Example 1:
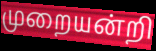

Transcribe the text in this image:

முறையன்றி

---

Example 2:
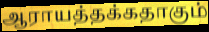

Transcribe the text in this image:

ஆராயத்தக்கதாகும்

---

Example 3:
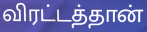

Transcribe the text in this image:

விரட்டத்தான்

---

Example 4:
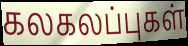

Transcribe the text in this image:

கலகலப்புகள்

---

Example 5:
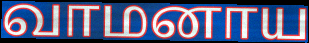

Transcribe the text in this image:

வாமனாய